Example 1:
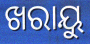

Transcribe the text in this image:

ଖରାୟୁ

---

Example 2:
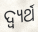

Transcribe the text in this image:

ଦ୍ୱ୍ୟର୍ଥ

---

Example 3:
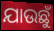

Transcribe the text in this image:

ଯାଉଛୁଁ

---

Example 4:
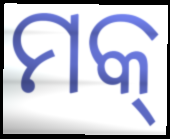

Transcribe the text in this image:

ମକ୍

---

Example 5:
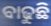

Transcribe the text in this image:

ବାଢୁଛି